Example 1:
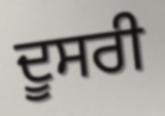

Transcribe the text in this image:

ਦੂਸਰੀ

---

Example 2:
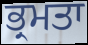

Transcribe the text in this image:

ਭ੍ਰਮਤਾ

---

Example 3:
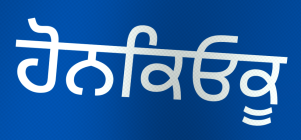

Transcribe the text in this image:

ਹੋਨਕਿਓਕੂ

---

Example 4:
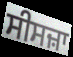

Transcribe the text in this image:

ਸੀਸਜ਼ਾ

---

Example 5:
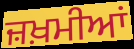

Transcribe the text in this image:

ਜ਼ਖ਼ਮੀਆਂ